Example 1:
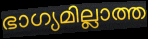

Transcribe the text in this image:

ഭാഗ്യമില്ലാത്ത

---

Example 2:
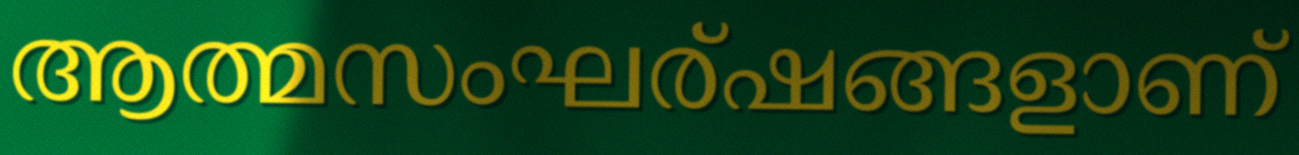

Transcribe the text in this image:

ആത്മസംഘര്ഷങ്ങളാണ്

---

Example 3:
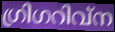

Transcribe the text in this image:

ഗ്രിഗറിവ്ന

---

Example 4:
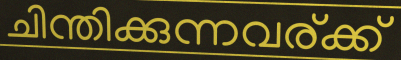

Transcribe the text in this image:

ചിന്തിക്കുന്നവര്ക്ക്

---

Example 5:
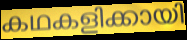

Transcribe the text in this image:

കഥകളിക്കായി